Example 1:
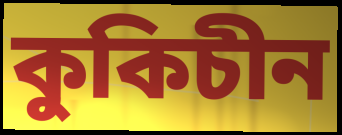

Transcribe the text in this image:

কুকিচীন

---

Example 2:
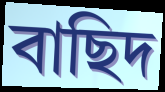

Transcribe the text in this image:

বাছিদ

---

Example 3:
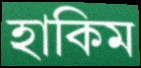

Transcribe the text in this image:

হাকিম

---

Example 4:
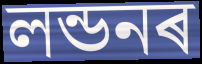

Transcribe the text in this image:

লন্ডনৰ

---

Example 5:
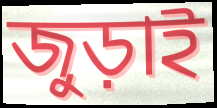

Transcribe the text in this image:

জুড়াই